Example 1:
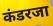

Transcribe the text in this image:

कंडरजा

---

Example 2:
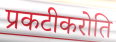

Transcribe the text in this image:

प्रकटीकरोति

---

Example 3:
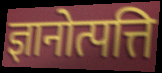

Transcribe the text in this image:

ज्ञानोत्पत्ति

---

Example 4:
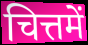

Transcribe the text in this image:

चित्तमें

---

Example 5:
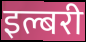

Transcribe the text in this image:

इल्बरी